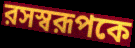
রসস্বরূপকে